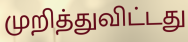
முறித்துவிட்டது